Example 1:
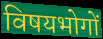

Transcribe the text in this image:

विषयभोगों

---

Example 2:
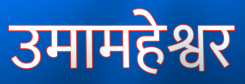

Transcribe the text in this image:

उमामहेश्वर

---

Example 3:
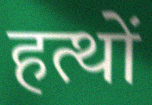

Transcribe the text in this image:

हत्थों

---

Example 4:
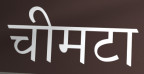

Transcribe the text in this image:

चीमटा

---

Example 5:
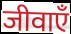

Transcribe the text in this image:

जीवाएँ